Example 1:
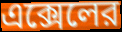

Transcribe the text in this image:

এক্সেলের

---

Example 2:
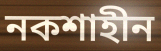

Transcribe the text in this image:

নকশাহীন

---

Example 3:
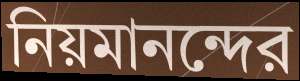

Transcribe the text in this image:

নিয়মানন্দের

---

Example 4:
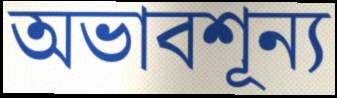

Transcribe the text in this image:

অভাবশূন্য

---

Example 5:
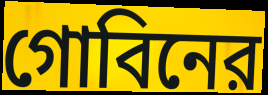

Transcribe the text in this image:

গোবিনের